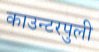
काउन्टरपुली